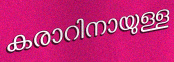
കരാറിനായുള്ള